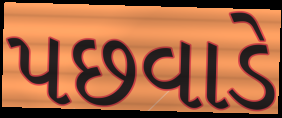
પછવાડે